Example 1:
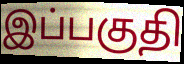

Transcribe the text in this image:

இப்பகுதி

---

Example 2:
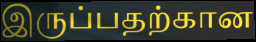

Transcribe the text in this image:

இருப்பதற்கான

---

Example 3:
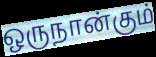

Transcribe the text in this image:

ஒருநான்கும்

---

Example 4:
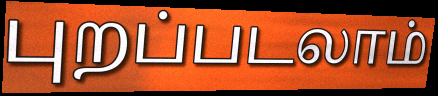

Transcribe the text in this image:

புறப்படலாம்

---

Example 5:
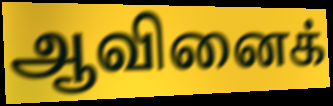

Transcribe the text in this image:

ஆவினைக்